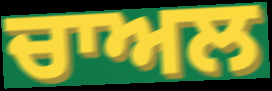
ਚਾਅਲ